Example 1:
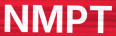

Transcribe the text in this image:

NMPT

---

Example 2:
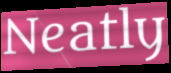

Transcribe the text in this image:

Neatly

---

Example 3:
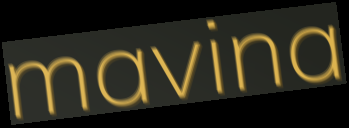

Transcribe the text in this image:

mavina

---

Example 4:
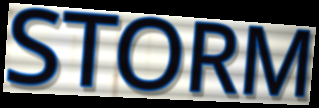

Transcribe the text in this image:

STORM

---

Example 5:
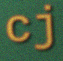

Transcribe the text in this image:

cj